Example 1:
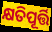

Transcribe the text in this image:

କ୍ଷତିପୂର୍ତ୍ତି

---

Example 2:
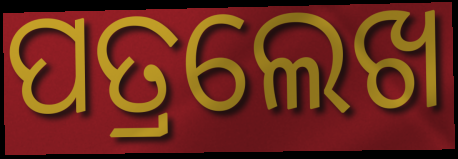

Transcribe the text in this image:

ପତ୍ରଲେଖ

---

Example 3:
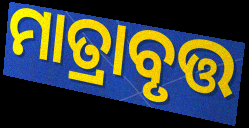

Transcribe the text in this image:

ମାତ୍ରାବୃତ୍ତ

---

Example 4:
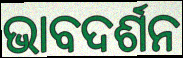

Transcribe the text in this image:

ଭାବଦର୍ଶନ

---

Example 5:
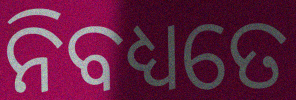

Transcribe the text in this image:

ନିବଧ୍ୟତେ